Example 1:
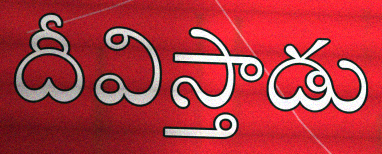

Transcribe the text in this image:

దీవిస్తాడు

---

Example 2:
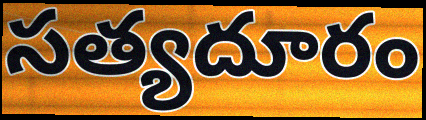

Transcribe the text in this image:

సత్యదూరం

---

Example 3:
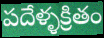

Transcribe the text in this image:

పదేళ్ళక్రితం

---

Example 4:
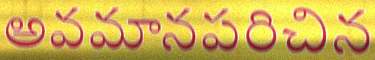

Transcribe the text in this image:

అవమానపరిచిన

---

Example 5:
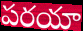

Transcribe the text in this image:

పరయా